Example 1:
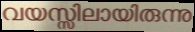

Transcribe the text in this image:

വയസ്സിലായിരുന്നു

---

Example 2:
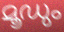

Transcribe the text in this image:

മൂഡും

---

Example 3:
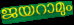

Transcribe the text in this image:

ജയറാമും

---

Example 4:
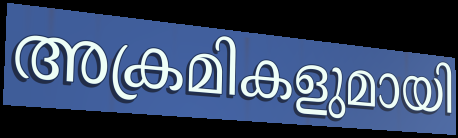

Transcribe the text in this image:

അക്രമികളുമായി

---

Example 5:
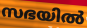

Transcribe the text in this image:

സഭയിൽ